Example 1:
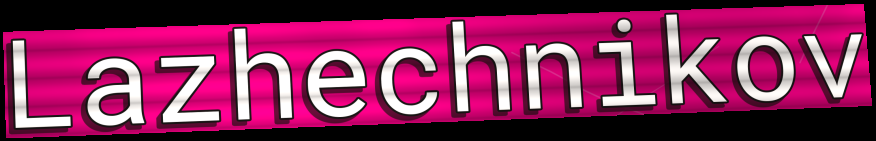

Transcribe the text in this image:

Lazhechnikov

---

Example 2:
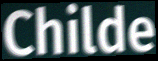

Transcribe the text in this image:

Childe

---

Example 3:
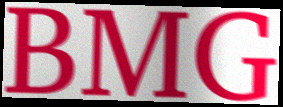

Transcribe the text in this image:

BMG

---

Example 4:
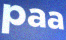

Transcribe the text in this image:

paa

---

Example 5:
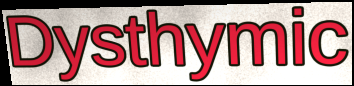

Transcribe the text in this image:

Dysthymic